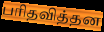
பரிதவித்தன